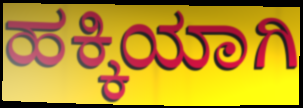
ಹಕ್ಕಿಯಾಗಿ